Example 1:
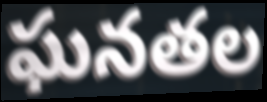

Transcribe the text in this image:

ఘనతల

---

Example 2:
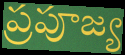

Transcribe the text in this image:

ప్రపూజ్య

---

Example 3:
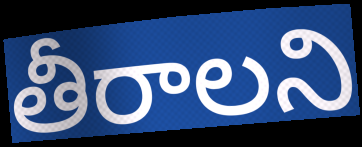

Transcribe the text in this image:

తీరాలని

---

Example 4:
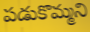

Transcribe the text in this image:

పడుకొమ్మని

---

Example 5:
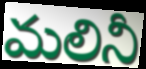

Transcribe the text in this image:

మలినీ